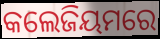
କଲେଜିୟମରେ